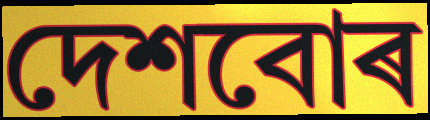
দেশবোৰ